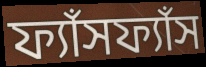
ফ্যাঁসফ্যাঁস